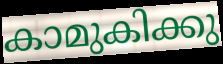
കാമുകിക്കു